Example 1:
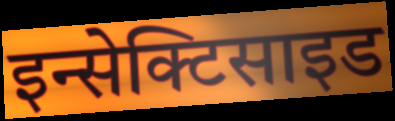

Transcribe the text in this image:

इन्सेक्टिसाइड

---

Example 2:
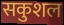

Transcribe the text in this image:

सकुशल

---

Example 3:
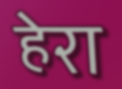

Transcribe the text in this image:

हेरा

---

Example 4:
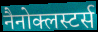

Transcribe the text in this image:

नैनोक्लस्टर्स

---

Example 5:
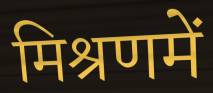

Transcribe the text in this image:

मिश्रणमें